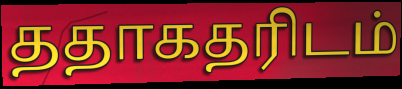
ததாகதரிடம்